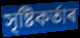
সৃষ্টিকৰ্তাৰ